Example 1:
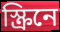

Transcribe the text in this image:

স্ক্রিনে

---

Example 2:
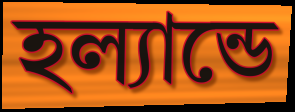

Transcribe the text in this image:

হল্যান্ডে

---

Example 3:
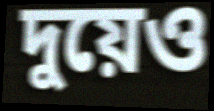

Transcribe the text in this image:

দুয়েও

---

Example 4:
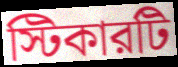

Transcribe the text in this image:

স্টিকারটি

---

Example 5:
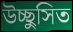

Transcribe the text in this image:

উচ্ছুসিত